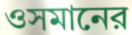
ওসমানের